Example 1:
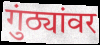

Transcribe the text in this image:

गुंठ्यांवर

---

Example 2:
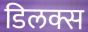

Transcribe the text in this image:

डिलक्स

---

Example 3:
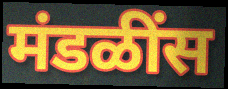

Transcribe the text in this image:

मंडळींस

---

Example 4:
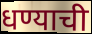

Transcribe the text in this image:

धण्याची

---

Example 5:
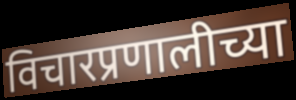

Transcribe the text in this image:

विचारप्रणालीच्या